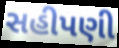
સહીપણી